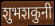
शुभशकुनी